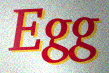
Egg